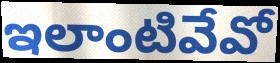
ఇలాంటివేవో